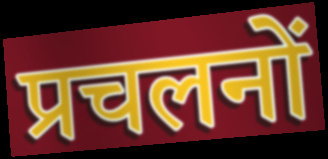
प्रचलनों